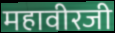
महावीरजी